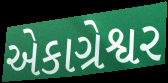
એકાગ્રેશ્વર